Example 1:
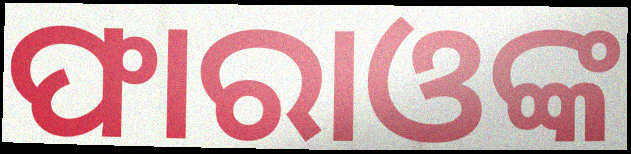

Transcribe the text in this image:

ଫାରାଓଙ୍କ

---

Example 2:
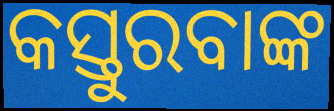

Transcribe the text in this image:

କସ୍ତୁରବାଙ୍କ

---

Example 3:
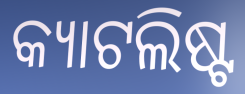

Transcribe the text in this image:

କ୍ୟାଟଲିଷ୍ଟ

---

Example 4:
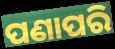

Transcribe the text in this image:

ପଣାପରି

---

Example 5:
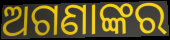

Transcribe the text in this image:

ଅଗଣାଙ୍କର